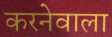
करनेवाला